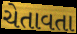
ચેતાવતા